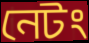
নেটং